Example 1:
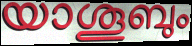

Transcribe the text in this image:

യാശൂബും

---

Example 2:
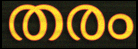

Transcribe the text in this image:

തരം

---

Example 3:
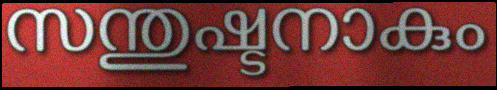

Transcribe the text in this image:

സന്തുഷ്ടനാകും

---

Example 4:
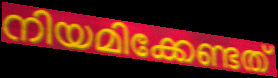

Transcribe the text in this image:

നിയമിക്കേണ്ടത്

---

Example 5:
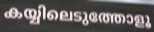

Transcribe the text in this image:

കയ്യിലെടുത്തോളൂ